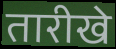
तारीखे